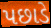
પછાડે